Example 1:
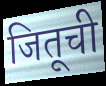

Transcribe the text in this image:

जितूची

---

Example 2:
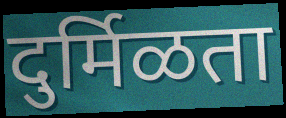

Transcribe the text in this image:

दुर्मिळता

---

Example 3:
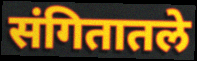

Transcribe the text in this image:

संगितातले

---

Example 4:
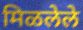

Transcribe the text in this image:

मिळलेले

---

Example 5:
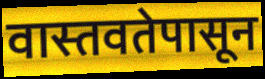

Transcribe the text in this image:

वास्तवतेपासून